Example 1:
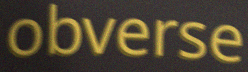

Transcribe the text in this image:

obverse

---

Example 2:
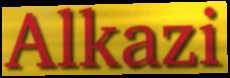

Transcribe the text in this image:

Alkazi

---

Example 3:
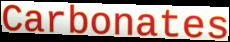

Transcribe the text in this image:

Carbonates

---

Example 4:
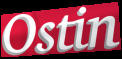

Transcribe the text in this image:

Ostin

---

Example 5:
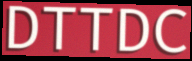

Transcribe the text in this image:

DTTDC